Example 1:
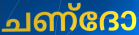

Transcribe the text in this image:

ചണ്ദോ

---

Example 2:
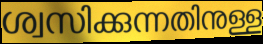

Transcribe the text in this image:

ശ്വസിക്കുന്നതിനുള്ള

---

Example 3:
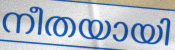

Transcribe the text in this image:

നീതയായി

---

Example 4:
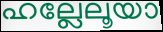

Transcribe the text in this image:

ഹല്ലേലൂയാ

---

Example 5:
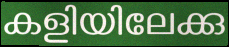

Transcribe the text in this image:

കളിയിലേക്കു